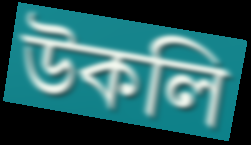
উকলি